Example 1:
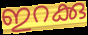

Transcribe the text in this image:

ഇറക്കു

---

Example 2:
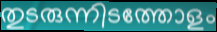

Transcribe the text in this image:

തുടരുന്നിടത്തോളം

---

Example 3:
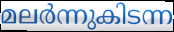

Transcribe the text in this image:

മലർന്നുകിടന്ന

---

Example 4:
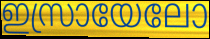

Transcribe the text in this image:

ഇസ്രായേലോ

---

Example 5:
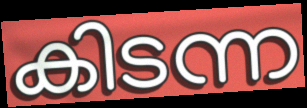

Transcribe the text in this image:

കിടന്ന